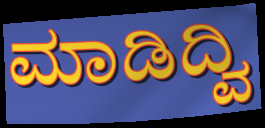
ಮಾಡಿದ್ವಿ